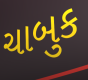
ચાબુક